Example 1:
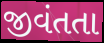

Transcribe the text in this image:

જીવંતતા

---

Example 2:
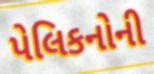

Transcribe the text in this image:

પેલિકનોની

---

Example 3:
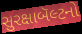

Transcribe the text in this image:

સુરક્ષાબૅલ્ટનો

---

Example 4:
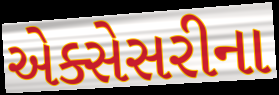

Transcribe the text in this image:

એક્સેસરીના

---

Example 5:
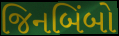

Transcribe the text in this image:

જિનબિંબો